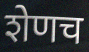
शेणच